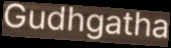
Gudhgatha